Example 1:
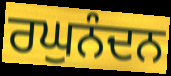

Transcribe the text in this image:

ਰਘੁਨੰਦਨ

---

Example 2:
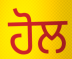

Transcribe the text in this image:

ਹੋਲ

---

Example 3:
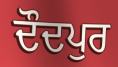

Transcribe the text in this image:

ਦੌਦਪੁਰ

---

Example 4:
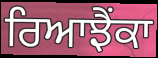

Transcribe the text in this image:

ਰਿਆਝੈਂਕਾ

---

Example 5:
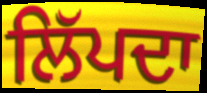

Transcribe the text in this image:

ਲਿੱਪਦਾ